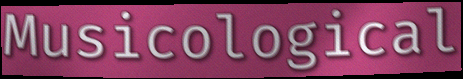
Musicological